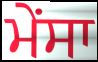
ਮੇਂਸਾ